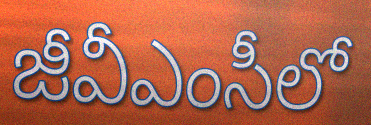
జీవీఎంసీలో